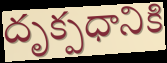
దృక్పధానికి